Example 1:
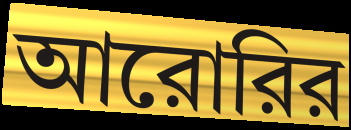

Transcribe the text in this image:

আরোরির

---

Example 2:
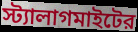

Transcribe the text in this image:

স্ট্যালাগমাইটের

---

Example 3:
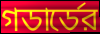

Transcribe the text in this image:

গডার্ডের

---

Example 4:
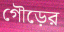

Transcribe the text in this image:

গৌড়ের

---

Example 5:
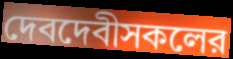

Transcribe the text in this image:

দেবদেবীসকলের